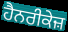
ਹੈਨਰੀਕੇਜ਼